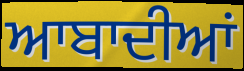
ਆਬਾਦੀਆਂ